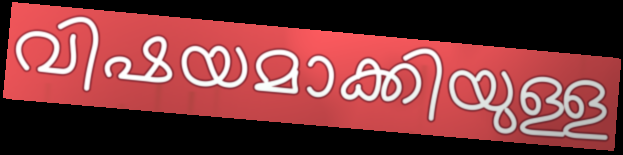
വിഷയമാക്കിയുള്ള